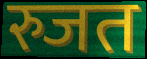
रुजत